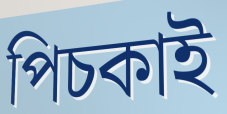
পিচকাই